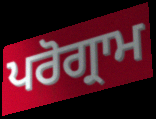
ਪਰੋਗ੍ਰਾਮ